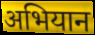
अभियान